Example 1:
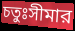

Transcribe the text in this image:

চতুঃসীমার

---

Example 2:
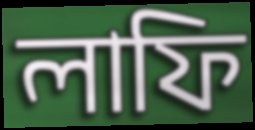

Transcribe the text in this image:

লাফি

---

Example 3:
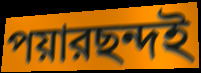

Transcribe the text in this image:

পয়ারছন্দই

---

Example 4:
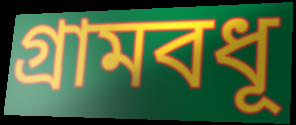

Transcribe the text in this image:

গ্রামবধূ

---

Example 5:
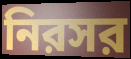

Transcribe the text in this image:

নিরসর